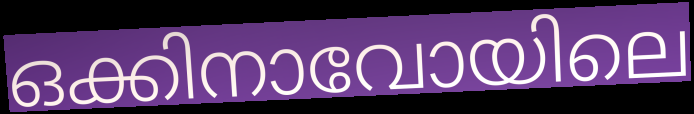
ഒക്കിനാവോയിലെ